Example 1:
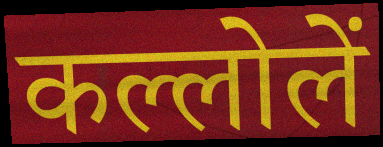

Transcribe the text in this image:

कल्लोलें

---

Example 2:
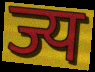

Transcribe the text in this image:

ज्य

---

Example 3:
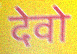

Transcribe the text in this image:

देवो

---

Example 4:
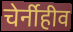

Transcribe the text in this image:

चेर्नीहीव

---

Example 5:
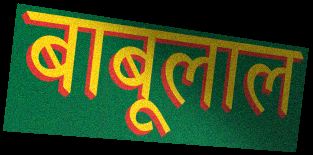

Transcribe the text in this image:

बाबूलाल